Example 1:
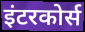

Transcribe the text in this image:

इंटरकोर्स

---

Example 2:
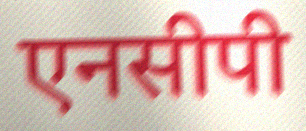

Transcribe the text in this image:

एनसीपी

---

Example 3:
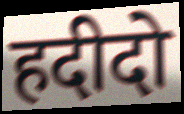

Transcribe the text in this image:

हदीदो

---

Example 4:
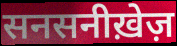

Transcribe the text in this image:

सनसनीख़ेज़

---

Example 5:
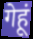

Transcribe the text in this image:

गेहूं